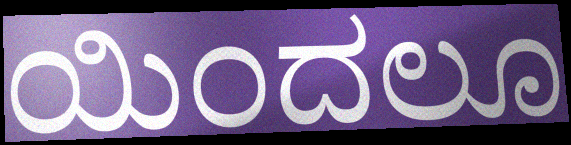
ಯಿಂದಲೂ